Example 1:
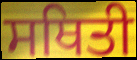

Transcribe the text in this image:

ਸਥਿਤੀ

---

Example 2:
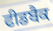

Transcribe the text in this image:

ਫੀਡਬੈਕ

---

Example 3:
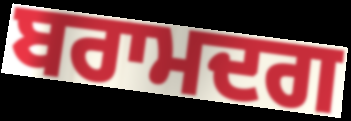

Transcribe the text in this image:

ਬਰਾਮਦਗ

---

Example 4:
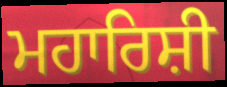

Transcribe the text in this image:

ਮਹਾਰਿਸ਼ੀ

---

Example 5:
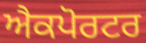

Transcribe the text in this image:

ਐਕਪੋਰਟਰ